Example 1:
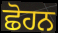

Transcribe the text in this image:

ਛੋਹਨ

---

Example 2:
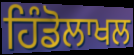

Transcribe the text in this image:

ਹਿੰਡੋਲਾਖਲ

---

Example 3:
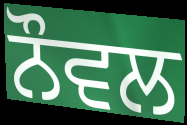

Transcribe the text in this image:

ਨੌਵਲ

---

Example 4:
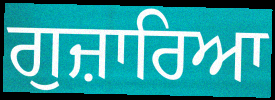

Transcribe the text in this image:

ਗੁਜ਼ਾਰਿਆ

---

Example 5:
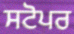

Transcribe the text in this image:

ਸਟੋਪਰ